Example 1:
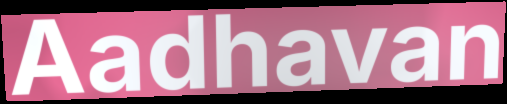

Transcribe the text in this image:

Aadhavan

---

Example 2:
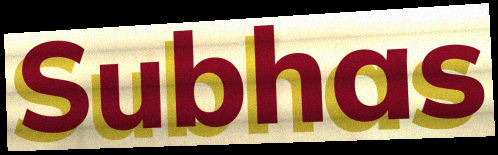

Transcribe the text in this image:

Subhas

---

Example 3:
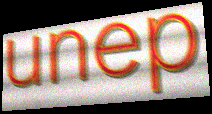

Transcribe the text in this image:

unep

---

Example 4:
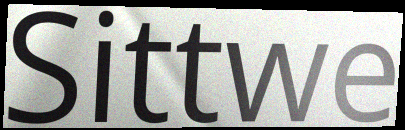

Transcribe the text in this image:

Sittwe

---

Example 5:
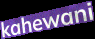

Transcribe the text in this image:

kahewani